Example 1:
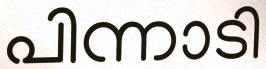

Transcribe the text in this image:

പിന്നാടി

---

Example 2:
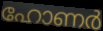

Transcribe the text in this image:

ഹോണർ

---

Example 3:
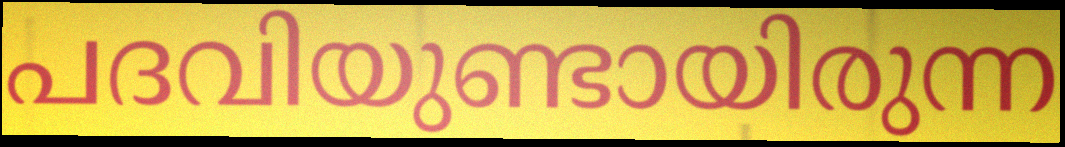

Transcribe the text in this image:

പദവിയുണ്ടായിരുന്ന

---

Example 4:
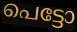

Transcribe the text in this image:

പെട്ടോ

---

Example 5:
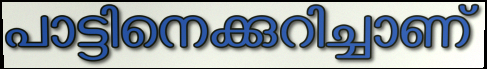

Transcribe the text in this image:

പാട്ടിനെക്കുറിച്ചാണ്